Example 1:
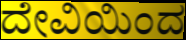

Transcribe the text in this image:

ದೇವಿಯಿಂದ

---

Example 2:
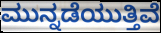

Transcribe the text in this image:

ಮುನ್ನಡೆಯುತ್ತಿವೆ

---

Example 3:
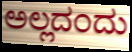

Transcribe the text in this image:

ಅಲ್ಲದಂದು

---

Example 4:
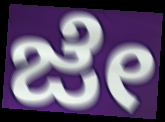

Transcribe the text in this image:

ಜೇ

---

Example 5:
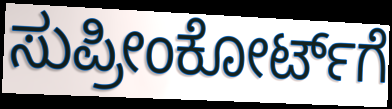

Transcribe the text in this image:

ಸುಪ್ರೀಂಕೋರ್ಟ್‌ಗೆ